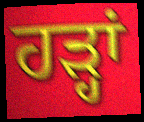
ਹੜ੍ਹਾਂ